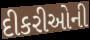
દીકરીઓની